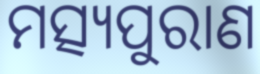
ମତ୍ସ୍ୟପୁରାଣ